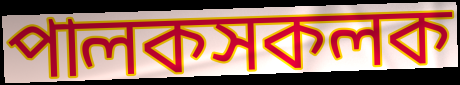
পালকসকলক